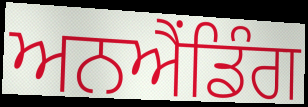
ਅਨਐਂਡਿੰਗ